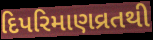
દિપરિમાણવ્રતથી